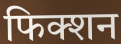
फिक्‍शन